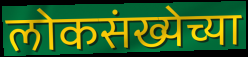
लोकसंख्‍येच्‍या